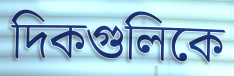
দিকগুলিকে